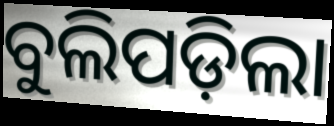
ବୁଲିପଡ଼ିଲା